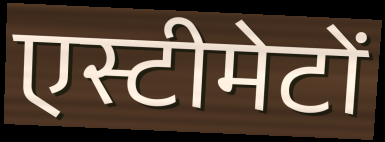
एस्टीमेटों